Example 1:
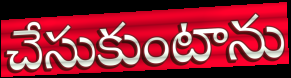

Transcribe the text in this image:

చేసుకుంటాను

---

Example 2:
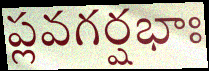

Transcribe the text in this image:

ప్లవగర్షభాః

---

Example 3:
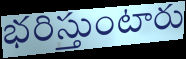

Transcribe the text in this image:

భరిస్తుంటారు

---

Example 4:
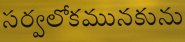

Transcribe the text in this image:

సర్వలోకమునకును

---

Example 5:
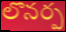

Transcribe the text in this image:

లొనర్ప